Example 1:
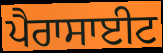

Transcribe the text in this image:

ਪੈਰਾਸਾਈਟ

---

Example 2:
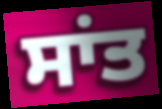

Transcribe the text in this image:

ਸਾਂਤ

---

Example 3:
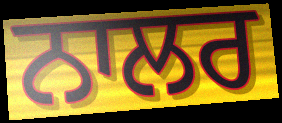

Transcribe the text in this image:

ਨਾਲਰ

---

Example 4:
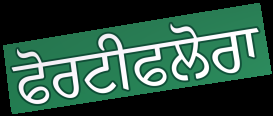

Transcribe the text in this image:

ਫੋਰਟੀਫਲੋਰਾ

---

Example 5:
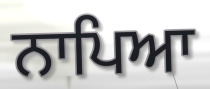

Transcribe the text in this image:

ਨਾਪਿਆ